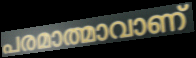
പരമാത്മാവാണ്